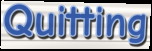
Quitting